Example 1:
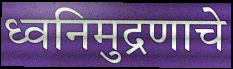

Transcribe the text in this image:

ध्वनिमुद्रणाचे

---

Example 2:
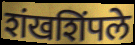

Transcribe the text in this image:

शंखशिंपले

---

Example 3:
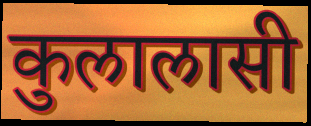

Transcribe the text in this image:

कुलालासी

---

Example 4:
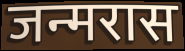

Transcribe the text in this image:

जन्मरास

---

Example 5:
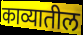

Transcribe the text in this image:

काव्यातील